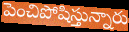
పెంచిపోషిస్తున్నారు